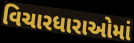
વિચારધારાઓમાં